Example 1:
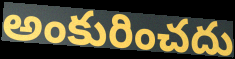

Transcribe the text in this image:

అంకురించదు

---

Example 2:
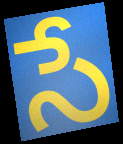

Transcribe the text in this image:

సే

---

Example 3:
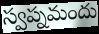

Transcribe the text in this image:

స్వప్నమందు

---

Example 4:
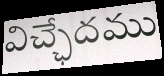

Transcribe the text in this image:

విచ్ఛేదము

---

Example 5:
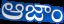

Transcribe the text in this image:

ఆజాం